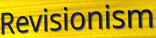
Revisionism